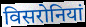
विसरोनियां